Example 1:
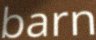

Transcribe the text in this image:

barn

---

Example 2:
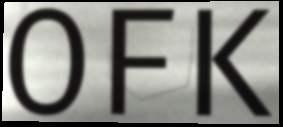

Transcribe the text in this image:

OFK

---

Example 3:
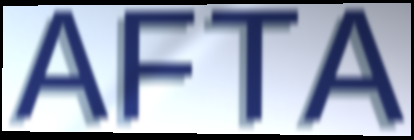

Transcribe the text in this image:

AFTA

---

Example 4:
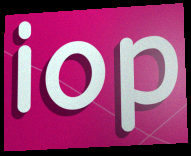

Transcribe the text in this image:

iop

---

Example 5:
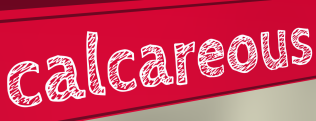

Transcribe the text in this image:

calcareous